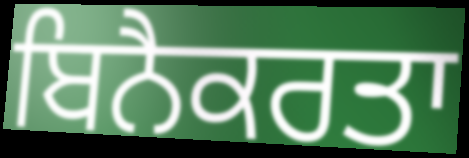
ਬਿਨੈਕਰਤਾ